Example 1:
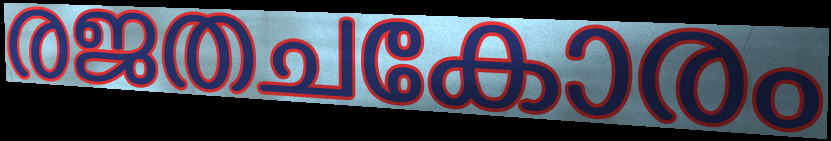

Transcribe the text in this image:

രജതചകോരം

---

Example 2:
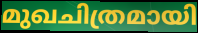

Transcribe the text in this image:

മുഖചിത്രമായി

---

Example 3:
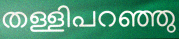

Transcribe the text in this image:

തള്ളിപറഞ്ഞു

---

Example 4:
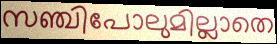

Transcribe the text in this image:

സഞ്ചിപോലുമില്ലാതെ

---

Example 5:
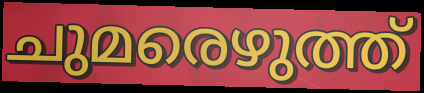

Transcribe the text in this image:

ചുമരെഴുത്ത്